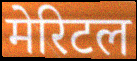
मेरिटल